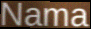
Nama